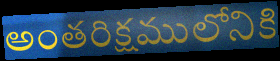
అంతరిక్షములోనికి